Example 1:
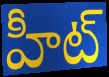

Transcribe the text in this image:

హీట్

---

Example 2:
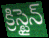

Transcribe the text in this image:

క్రిస్టైన్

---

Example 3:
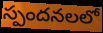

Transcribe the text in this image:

స్పందనలలో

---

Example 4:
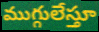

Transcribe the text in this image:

ముగ్గులేస్తూ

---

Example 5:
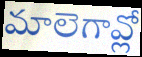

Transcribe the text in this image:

మాలెగావ్లో